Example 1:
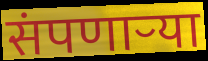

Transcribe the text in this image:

संपणाऱ्या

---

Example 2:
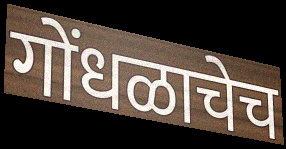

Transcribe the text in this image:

गोंधळाचेच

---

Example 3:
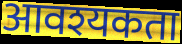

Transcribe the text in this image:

आवश्यकता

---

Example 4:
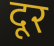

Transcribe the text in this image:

दूर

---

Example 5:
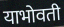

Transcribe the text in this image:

याभोवती